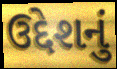
ઉદ્દેશનું